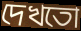
দেখতো